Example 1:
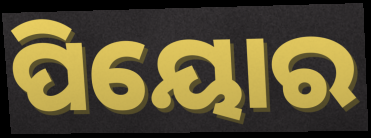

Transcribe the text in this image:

ପିୟୋର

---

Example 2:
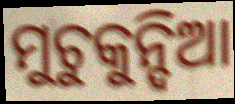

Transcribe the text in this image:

ମୁଚୁକୁନ୍ଦିଆ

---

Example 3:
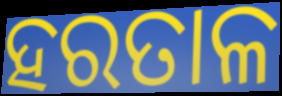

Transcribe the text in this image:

ହରତାଳ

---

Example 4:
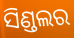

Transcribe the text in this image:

ସିଣ୍ଡଲର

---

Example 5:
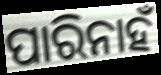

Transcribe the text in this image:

ପାରିନାହଁ